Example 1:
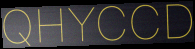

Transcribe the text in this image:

QHYCCD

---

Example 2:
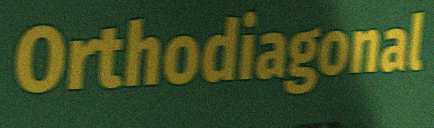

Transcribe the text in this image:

Orthodiagonal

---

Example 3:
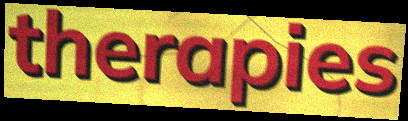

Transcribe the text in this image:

therapies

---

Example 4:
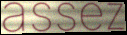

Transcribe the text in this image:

assez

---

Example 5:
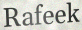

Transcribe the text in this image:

Rafeek